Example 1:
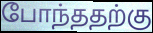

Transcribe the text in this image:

போந்ததற்கு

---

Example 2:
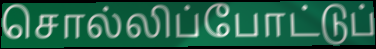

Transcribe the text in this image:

சொல்லிப்போட்டுப்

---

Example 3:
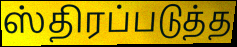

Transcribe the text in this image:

ஸ்திரப்படுத்த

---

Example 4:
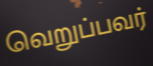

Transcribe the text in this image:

வெறுப்பவர்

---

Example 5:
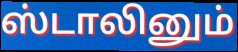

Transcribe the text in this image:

ஸ்டாலினும்